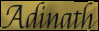
Adinath